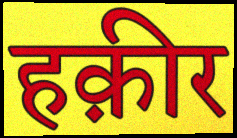
हक़ीर